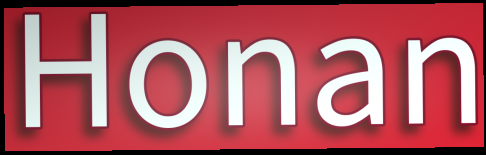
Honan